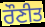
ਰੌਣੀਤ